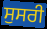
ਸੁਸਰੀ